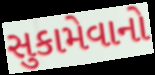
સુકામેવાનો